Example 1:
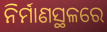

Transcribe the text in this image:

ନିର୍ମାଣସ୍ଥଳରେ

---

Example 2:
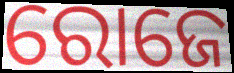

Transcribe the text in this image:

ରୋଜେ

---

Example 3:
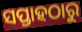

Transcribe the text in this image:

ସପ୍ତାହଠାରୁ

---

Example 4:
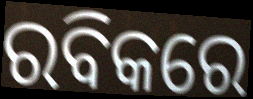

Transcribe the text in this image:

ରବିକରେ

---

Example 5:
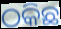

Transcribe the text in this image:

ଠକିଛ